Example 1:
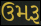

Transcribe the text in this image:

ઉમરૂ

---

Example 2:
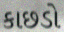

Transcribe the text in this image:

કાછડો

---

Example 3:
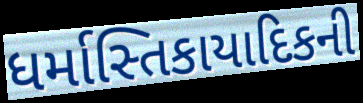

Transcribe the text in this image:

ધર્માસ્તિકાયાદિકની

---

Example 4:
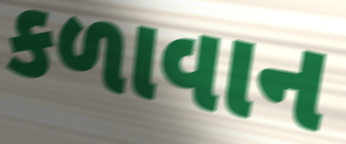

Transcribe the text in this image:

કળાવાન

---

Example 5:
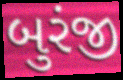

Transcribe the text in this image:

બુરંજી